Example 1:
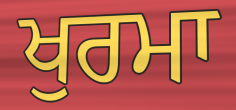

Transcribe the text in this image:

ਖੁਰਮਾ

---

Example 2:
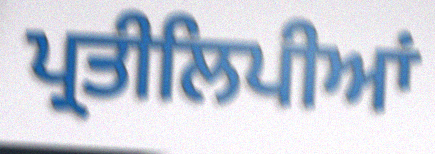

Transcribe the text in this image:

ਪ੍ਰਤੀਲਿਪੀਆਂ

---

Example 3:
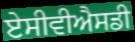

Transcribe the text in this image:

ਏਸੀਵੀਐਸਡੀ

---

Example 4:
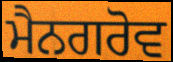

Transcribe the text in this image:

ਮੈਨਗਰੋਵ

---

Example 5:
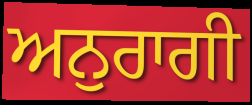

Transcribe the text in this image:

ਅਨੁਰਾਗੀ